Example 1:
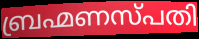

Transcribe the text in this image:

ബ്രഹ്മണസ്പതി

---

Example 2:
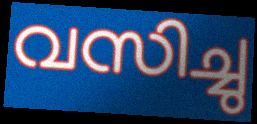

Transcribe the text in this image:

വസിച്ചു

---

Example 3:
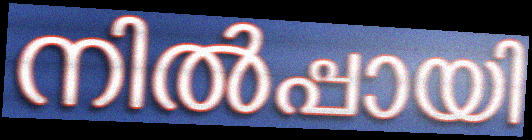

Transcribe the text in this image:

നിൽപ്പായി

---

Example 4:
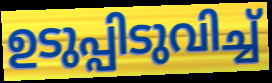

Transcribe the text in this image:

ഉടുപ്പിടുവിച്ച്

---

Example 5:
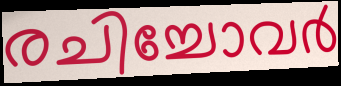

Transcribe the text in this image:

രചിച്ചോവർ